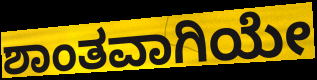
ಶಾಂತವಾಗಿಯೇ